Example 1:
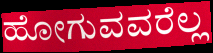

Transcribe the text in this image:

ಹೋಗುವವರೆಲ್ಲ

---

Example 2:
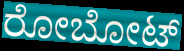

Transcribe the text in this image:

ರೋಬೋಟ್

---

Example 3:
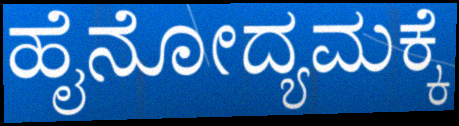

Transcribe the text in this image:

ಹೈನೋದ್ಯಮಕ್ಕೆ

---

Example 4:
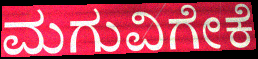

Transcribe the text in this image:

ಮಗುವಿಗೇಕೆ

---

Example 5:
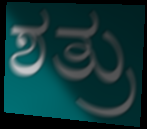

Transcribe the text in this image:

ಶತ್ರು